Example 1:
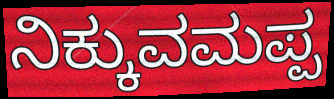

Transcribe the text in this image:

ನಿಕ್ಕುವಮಪ್ಪ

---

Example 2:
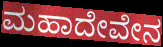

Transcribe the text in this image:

ಮಹಾದೇವೇನ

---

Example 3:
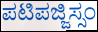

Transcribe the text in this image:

ಪಟಿಪಜ್ಜಿಸ್ಸಂ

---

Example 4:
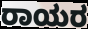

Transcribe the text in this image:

ರಾಯರ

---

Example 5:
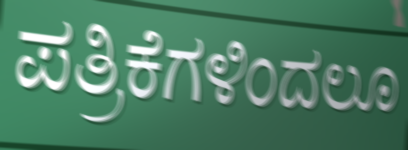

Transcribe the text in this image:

ಪತ್ರಿಕೆಗಳಿಂದಲೂ